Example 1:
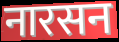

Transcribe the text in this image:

नारसन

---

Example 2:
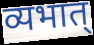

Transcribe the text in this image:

व्यभात्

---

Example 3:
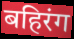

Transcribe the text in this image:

बहिरंग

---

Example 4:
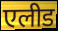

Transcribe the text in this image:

एलीड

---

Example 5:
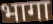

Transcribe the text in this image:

भागा